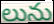
లును